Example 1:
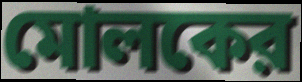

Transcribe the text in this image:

মোলকের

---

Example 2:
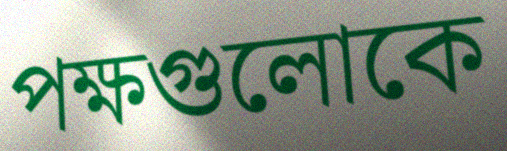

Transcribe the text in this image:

পক্ষগুলোকে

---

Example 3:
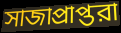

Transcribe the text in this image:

সাজাপ্রাপ্তরা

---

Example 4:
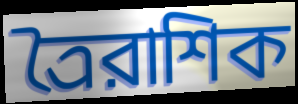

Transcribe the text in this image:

ত্রৈরাশিক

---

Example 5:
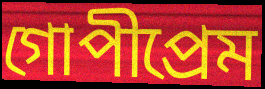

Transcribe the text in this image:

গোপীপ্রেম